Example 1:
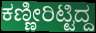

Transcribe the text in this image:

ಕಣ್ಣೀರಿಟ್ಟಿದ್ದ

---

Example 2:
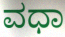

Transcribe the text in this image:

ವಧಾ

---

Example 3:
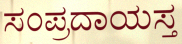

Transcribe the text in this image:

ಸಂಪ್ರದಾಯಸ್ತ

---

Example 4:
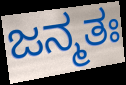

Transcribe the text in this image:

ಜನ್ಮತಃ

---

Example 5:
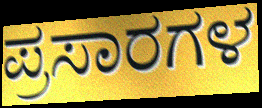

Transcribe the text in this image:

ಪ್ರಸಾರಗಳ